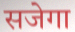
सजेगा